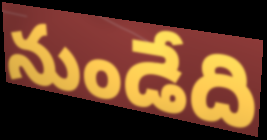
నుండేది